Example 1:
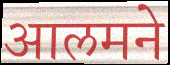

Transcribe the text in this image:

आलमने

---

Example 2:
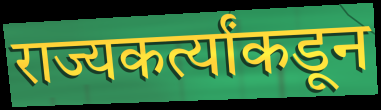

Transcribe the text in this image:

राज्यकर्त्यांकडून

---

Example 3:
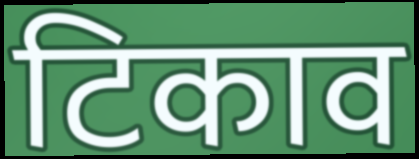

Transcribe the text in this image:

टिकाव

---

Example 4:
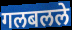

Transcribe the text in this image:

गलबलले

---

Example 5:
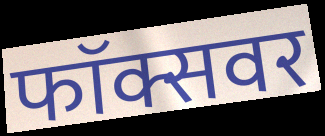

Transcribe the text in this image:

फॉक्सवर